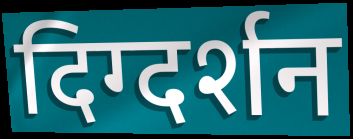
दिग्दर्शन